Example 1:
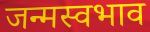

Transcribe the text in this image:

जन्मस्वभाव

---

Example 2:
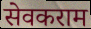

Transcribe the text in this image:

सेवकराम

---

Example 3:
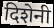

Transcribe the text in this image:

दिशेनी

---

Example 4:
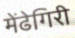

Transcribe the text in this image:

मेंढेगिरी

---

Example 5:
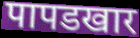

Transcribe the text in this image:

पापडखार